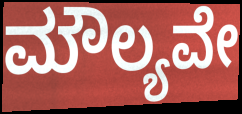
ಮೌಲ್ಯವೇ